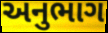
અનુભાગ